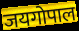
जयगोपाल